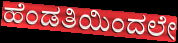
ಹೆಂಡತಿಯಿಂದಲೇ